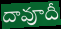
దావూదీ